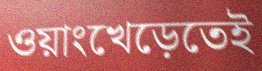
ওয়াংখেড়েতেই